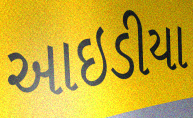
આઇડીયા